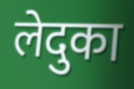
लेदुका